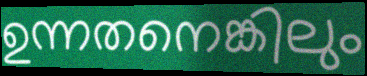
ഉന്നതനെങ്കിലും